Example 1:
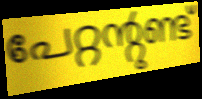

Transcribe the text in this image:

പേറ്റന്റുണ്ട്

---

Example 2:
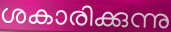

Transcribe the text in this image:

ശകാരിക്കുന്നു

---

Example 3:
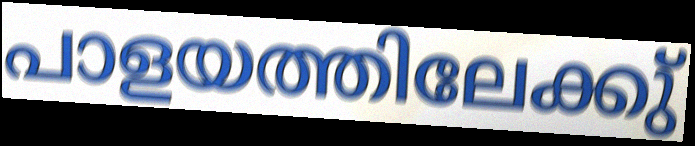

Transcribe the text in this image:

പാളയത്തിലേക്കു്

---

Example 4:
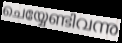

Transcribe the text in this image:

ചെയ്യേണ്ടിവന്നു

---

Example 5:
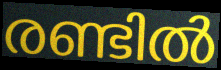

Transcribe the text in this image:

രണ്ടിൽ